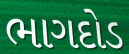
ભાગદોડ